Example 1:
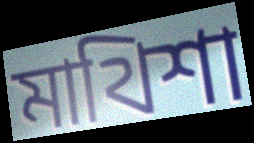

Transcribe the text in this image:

মাথিশা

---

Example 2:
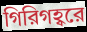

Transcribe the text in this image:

গিরিগহ্বরে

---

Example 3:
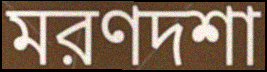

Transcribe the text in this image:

মরণদশা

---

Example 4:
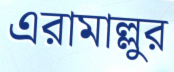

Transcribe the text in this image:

এরামাল্লুর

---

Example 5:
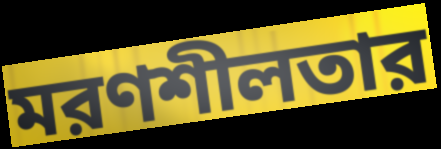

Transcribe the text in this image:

মরণশীলতার